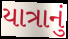
યાત્રાનું